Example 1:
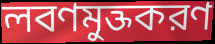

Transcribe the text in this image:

লবণমুক্তকরণ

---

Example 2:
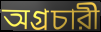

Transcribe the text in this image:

অগ্রচারী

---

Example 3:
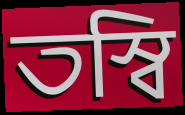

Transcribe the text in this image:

তস্বি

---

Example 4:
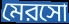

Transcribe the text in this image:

মেরসো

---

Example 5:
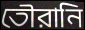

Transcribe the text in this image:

তৌরানি